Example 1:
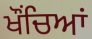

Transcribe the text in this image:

ਖੌਂਚਿਆਂ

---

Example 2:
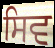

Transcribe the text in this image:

ਸਿਵ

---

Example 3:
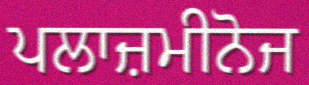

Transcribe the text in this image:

ਪਲਾਜ਼ਮੀਨੋਜ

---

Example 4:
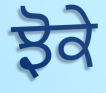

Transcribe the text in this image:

ਝੋਕੇ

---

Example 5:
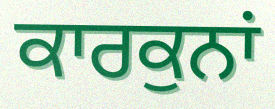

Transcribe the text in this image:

ਕਾਰਕੁਨਾਂ